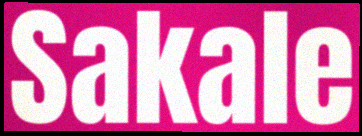
Sakale